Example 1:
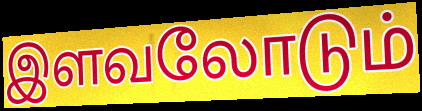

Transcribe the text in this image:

இளவலோடும்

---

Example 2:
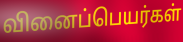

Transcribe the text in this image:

வினைப்பெயர்கள்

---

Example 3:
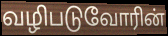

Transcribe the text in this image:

வழிபடுவோரின்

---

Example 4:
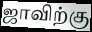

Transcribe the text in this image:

ஜாவிற்கு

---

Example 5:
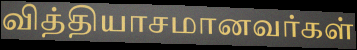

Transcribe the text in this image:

வித்தியாசமானவர்கள்